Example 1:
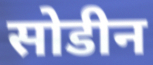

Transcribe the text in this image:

सोडीन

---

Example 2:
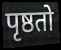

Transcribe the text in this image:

पृष्ठतो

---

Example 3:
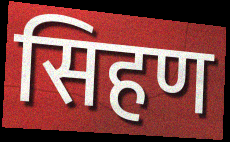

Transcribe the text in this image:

सिहण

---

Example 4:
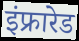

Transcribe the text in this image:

इंफ्रारेड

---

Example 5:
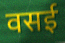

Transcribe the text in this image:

वसई